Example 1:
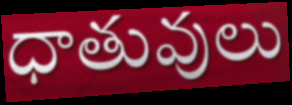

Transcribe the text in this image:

ధాతువులు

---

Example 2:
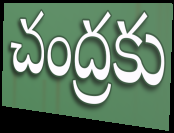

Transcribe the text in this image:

చంద్రకు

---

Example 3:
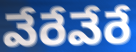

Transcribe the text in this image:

వేరేవేరే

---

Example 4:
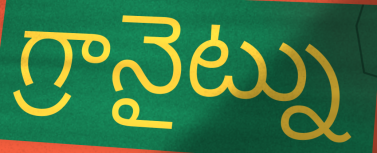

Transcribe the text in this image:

గ్రానైట్ను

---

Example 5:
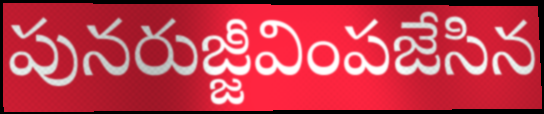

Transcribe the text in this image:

పునరుజ్జీవింపజేసిన